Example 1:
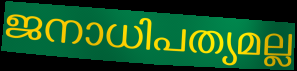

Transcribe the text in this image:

ജനാധിപത്യമല്ല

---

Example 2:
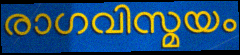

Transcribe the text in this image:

രാഗവിസ്മയം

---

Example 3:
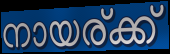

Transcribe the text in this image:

നായര്ക്ക്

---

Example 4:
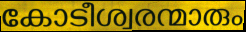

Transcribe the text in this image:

കോടീശ്വരന്മാരും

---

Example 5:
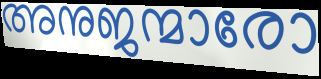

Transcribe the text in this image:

അനുജന്മാരോ